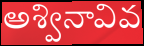
అశ్వినావివ